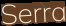
Serra